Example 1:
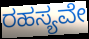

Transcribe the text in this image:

ರಹಸ್ಯವೇ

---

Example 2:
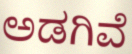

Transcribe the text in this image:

ಅಡಗಿವೆ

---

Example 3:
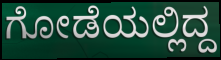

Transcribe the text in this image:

ಗೋಡೆಯಲ್ಲಿದ್ದ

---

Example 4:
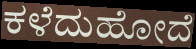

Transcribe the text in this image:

ಕಳೆದುಹೋದೆ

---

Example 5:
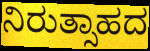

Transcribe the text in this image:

ನಿರುತ್ಸಾಹದ